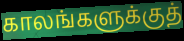
காலங்களுக்குத்